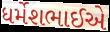
ધર્મેશભાઈએ